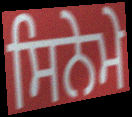
ਸਿਨੇਮੇ